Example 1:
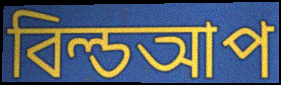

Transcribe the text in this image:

বিল্ডআপ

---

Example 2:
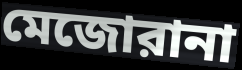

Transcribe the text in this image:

মেজোরানা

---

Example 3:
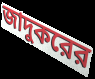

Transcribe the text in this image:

জাদুকরের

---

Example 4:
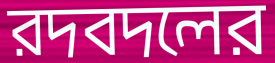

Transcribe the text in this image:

রদবদলের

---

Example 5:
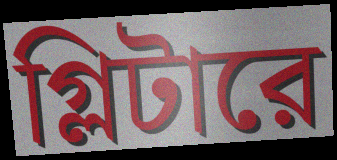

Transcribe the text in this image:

গ্লিটারে